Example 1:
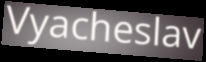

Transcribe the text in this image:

Vyacheslav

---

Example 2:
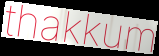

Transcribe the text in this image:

thakkum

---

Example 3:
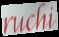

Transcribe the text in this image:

ruchi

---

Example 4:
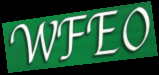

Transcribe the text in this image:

WFEO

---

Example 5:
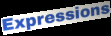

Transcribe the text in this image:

Expressions